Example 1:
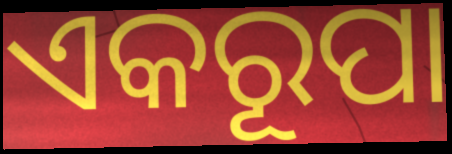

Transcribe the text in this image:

ଏକରୂପା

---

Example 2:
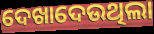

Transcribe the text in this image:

ଦେଖାଦେଉଥିଲା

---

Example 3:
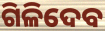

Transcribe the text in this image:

ଗିଳିଦେବ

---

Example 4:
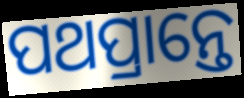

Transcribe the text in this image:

ପଥପ୍ରାନ୍ତେ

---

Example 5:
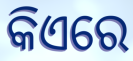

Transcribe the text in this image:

କିଏରେ